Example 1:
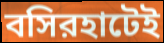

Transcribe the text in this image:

বসিরহাটেই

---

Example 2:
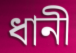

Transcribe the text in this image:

ধানী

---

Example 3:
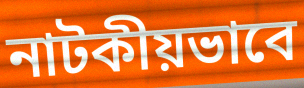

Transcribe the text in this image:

নাটকীয়ভাবে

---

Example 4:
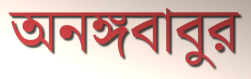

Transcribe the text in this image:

অনঙ্গবাবুর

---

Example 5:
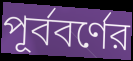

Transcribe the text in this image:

পূর্ববর্ণের